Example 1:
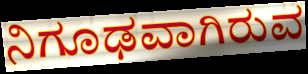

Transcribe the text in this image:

ನಿಗೂಢವಾಗಿರುವ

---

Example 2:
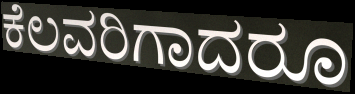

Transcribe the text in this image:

ಕೆಲವರಿಗಾದರೂ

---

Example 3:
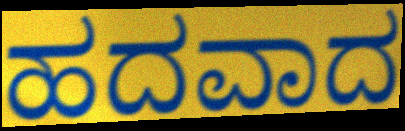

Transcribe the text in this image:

ಹದವಾದ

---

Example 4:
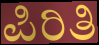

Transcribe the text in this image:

ಪಿರಿತಿ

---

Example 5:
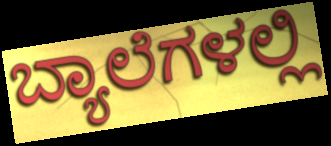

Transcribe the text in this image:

ಬ್ಯಾಲೆಗಳಲ್ಲಿ